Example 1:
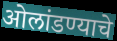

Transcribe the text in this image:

ओलांडण्याचे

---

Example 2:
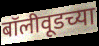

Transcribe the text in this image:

बॉलीवूडच्या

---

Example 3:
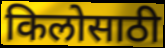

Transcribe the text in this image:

किलोसाठी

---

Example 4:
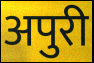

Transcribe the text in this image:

अपुरी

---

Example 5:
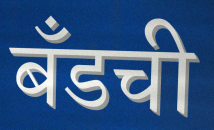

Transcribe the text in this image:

बँडची